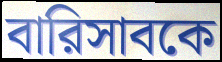
বারিসাবকে